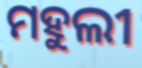
ମହୁଲୀ